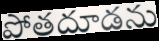
పోతదూడను